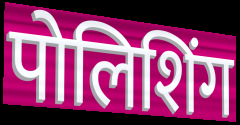
पोलिशिंग